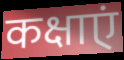
कक्षाएं